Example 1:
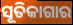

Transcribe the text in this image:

ସୂତିକାଗାର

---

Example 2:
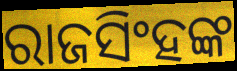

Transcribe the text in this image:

ରାଜସିଂହଙ୍କ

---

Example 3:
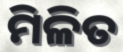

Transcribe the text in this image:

ମିଳିତ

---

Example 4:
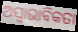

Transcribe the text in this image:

ଅସ୍ୱାଭାବିକତା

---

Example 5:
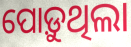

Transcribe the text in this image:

ପୋଡ଼ୁଥିଲା